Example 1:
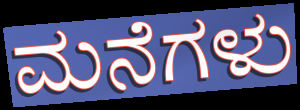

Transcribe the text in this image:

ಮನೆಗಳು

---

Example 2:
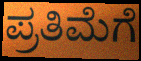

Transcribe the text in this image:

ಪ್ರತಿಮೆಗೆ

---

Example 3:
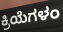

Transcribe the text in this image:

ಕ್ರಿಯೆಗಳಂ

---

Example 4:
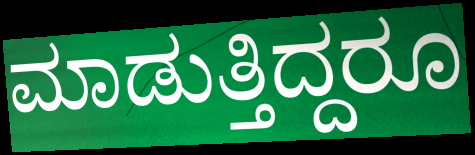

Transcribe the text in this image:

ಮಾಡುತ್ತಿದ್ದರೂ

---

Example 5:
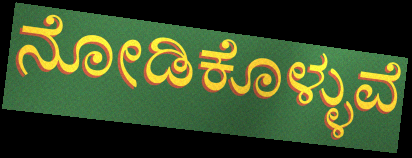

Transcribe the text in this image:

ನೋಡಿಕೊಳ್ಳುವೆ